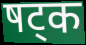
षट्क